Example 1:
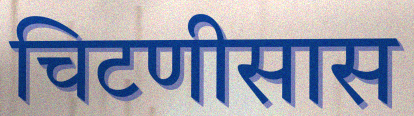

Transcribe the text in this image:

चिटणीसास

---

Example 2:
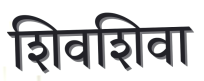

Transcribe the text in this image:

शिवशिवा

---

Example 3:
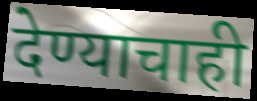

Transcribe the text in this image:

देण्याचाही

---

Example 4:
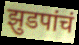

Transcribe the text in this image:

झुडपांचं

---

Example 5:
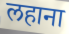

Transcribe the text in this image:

लहाना